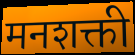
मनशक्ती